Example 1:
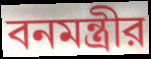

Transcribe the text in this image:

বনমন্ত্রীর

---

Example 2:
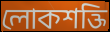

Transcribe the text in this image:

লোকশক্তি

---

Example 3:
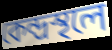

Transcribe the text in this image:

কেন্দ্রস্থলে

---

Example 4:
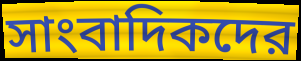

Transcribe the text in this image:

সাংবাদিকদের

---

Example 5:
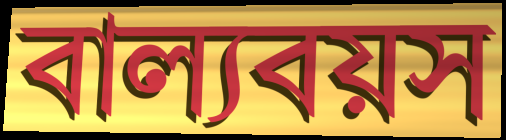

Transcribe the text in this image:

বাল্যবয়স